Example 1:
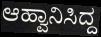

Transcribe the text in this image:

ಆಹ್ವಾನಿಸಿದ್ದ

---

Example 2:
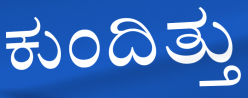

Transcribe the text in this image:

ಕುಂದಿತ್ತು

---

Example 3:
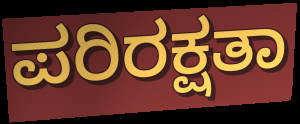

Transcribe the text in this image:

ಪರಿರಕ್ಷತಾ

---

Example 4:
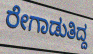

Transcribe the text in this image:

ರೇಗಾಡುತಿದ್ದ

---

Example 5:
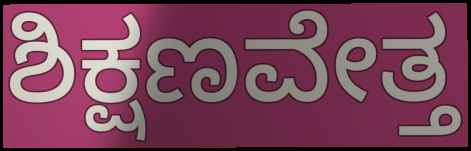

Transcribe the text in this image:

ಶಿಕ್ಷಣವೇತ್ತ